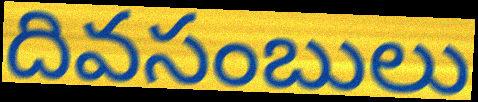
దివసంబులు